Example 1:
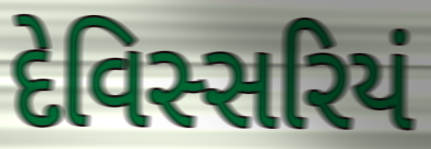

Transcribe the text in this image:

દેવિસ્સરિયં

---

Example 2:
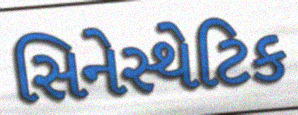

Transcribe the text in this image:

સિનેસ્થેટિક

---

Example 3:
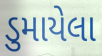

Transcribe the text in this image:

ડુમાયેલા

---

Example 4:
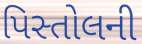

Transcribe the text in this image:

પિસ્તોલની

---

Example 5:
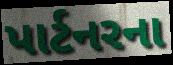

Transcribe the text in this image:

પાર્ટનરના